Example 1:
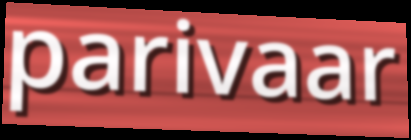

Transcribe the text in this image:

parivaar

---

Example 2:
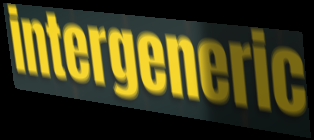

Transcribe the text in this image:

intergeneric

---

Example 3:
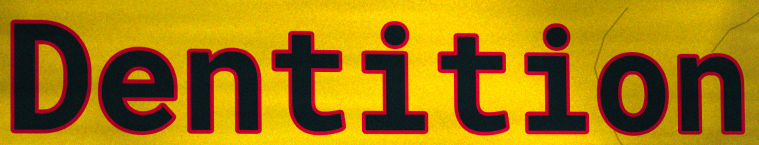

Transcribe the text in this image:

Dentition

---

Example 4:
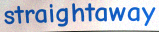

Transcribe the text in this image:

straightaway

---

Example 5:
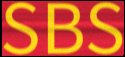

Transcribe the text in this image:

SBS